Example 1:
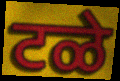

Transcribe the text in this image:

टळे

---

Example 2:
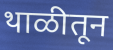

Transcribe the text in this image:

थाळीतून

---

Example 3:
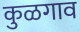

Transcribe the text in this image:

कुळगाव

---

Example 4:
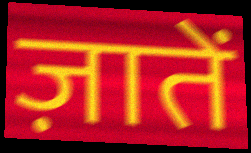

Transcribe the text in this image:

ज़ातें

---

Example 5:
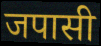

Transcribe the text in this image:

जपासी